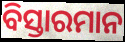
ବିସ୍ତାରମାନ